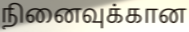
நினைவுக்கான